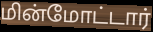
மின்மோட்டார்